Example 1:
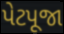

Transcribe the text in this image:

પેટપૂજા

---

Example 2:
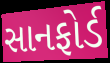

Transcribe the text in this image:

સાનફોર્ડ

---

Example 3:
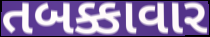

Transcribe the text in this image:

તબક્કાવાર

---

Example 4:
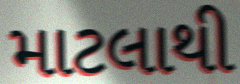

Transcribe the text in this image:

માટલાથી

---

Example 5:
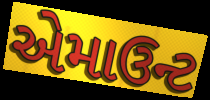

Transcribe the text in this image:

એમાઉન્ટ